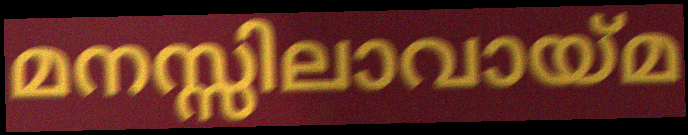
മനസ്സിലാവായ്മ